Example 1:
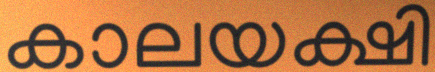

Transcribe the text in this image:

കാലയക്ഷി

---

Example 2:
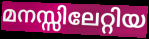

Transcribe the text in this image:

മനസ്സിലേറ്റിയ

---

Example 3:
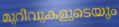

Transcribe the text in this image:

മുറിവുകളുടെയും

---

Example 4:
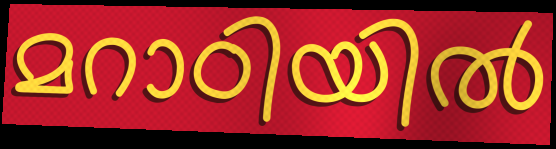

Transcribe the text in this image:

മറാഠിയിൽ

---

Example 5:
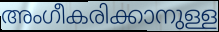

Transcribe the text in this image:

അംഗീകരിക്കാനുള്ള